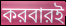
করবারই